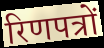
रिणपत्रों